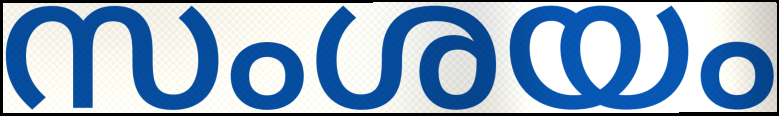
സംശയം